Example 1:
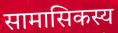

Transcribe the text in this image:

सामासिकस्य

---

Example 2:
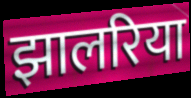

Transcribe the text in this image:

झालरिया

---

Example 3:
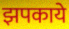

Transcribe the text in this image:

झपकाये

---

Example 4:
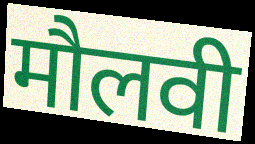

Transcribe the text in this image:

मौलवी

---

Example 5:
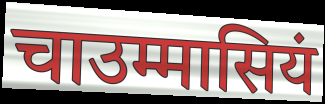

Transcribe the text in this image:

चाउम्मासियं